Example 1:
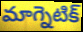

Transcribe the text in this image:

మాగ్నెటిక్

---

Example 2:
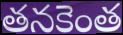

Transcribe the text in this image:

తనకెంత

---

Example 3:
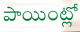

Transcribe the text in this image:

పాయింట్లో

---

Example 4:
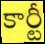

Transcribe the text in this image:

కార్టీ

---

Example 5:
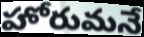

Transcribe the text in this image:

హోరుమనే